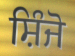
ਸ਼ਿੰਜੋ